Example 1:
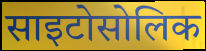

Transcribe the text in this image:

साइटोसोलिक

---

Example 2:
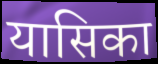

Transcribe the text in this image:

यासिका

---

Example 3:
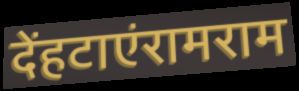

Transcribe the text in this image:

देंहटाएंरामराम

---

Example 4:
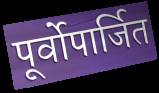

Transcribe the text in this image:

पूर्वोपार्जित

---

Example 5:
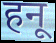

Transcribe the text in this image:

हनू